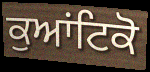
ਕੁਆਂਟਿਕੋ